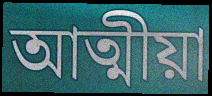
আত্মীয়া